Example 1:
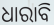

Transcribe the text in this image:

ଧାରାବି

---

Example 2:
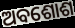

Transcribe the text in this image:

ଅବଶୋଶ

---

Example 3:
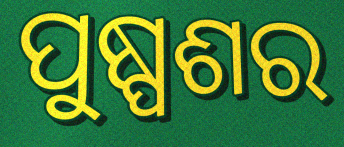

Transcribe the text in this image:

ପୁଷ୍ପଶର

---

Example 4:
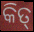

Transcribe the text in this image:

କିତ୍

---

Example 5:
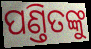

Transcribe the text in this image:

ପଣ୍ତିତଙ୍କୁ